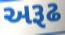
અરૂઢ